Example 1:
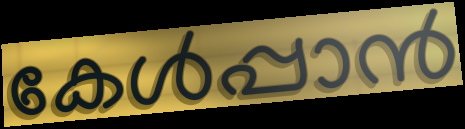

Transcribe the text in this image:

കേൾപ്പാൻ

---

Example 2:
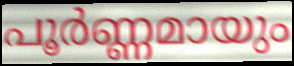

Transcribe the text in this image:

പൂർണ്ണമായും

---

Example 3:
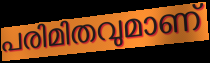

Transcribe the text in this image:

പരിമിതവുമാണ്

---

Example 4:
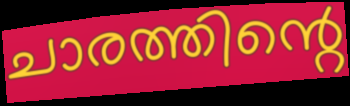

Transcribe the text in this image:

ചാരത്തിന്റെ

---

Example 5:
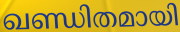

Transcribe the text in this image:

ഖണ്ഡിതമായി